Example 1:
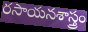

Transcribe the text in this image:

రసాయనశాస్త్రం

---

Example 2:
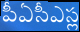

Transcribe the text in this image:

పీఏసీఎస్ల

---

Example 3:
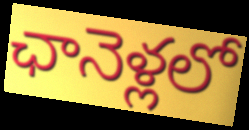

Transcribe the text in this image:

ఛానెళ్లలో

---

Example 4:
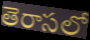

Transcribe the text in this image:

తెరాసలో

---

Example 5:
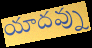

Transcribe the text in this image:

యాదవ్ను